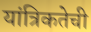
यांत्रिकतेची